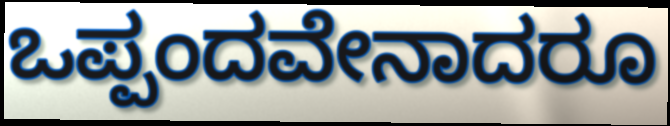
ಒಪ್ಪಂದವೇನಾದರೂ